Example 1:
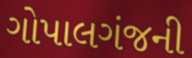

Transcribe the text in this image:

ગોપાલગંજની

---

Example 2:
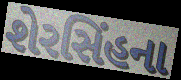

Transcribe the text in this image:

શેરસિંહના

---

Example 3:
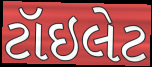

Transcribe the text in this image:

ટૉઇલેટ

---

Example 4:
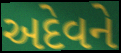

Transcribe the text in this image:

અદેવને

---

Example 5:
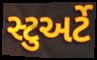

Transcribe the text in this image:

સ્ટુઅર્ટે